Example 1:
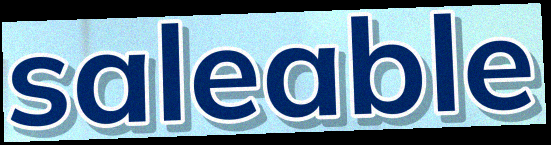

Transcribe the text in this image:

saleable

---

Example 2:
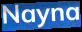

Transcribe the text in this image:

Nayna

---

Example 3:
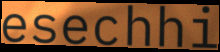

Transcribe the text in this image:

esechhi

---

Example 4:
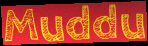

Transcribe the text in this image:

Muddu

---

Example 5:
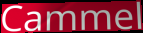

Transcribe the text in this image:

Cammel